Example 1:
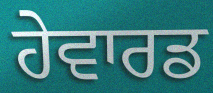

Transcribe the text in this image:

ਹੇਵਾਰਡ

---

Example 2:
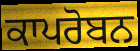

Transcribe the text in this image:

ਕਾਪਰੋਬਨ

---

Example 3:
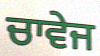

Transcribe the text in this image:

ਚਾਵੇਜ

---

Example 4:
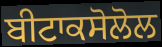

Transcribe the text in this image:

ਬੀਟਾਕਸੋਲੋਲ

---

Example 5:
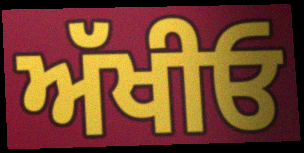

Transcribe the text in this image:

ਅੱਖੀਓ